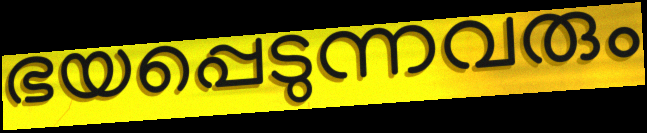
ഭയപ്പെടുന്നവരും